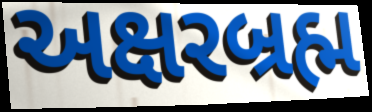
અક્ષરબ્રહ્મ